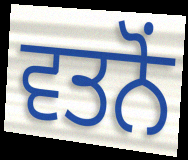
ਵਤਨੋਂ